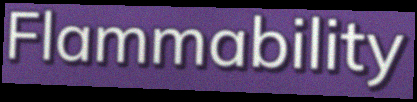
Flammability